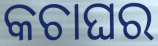
କଚାଘର